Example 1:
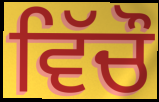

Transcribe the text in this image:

ਵਿੱਚੌ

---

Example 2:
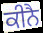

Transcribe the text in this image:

ਕੀਨੈ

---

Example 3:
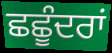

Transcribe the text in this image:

ਛਛੂੰਦਰਾਂ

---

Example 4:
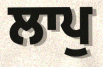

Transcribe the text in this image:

ਲਾਪੁ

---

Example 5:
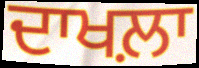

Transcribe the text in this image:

ਦਾਖਲ਼ਾ